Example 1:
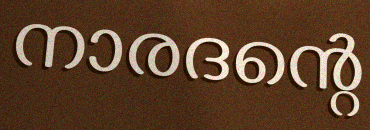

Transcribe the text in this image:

നാരദന്റെ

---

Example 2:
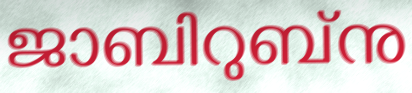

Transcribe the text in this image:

ജാബിറുബ്നു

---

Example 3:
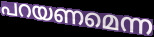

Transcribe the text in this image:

പറയണമെന്ന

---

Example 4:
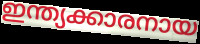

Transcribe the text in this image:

ഇന്ത്യക്കാരനായ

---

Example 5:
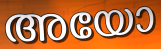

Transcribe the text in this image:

അയോ